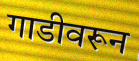
गाडीवरून